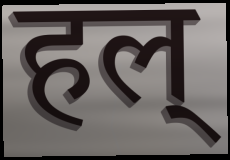
हल्